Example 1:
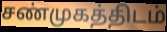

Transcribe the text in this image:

சண்முகத்திடம்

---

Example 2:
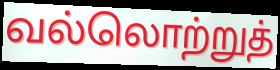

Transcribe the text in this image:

வல்லொற்றுத்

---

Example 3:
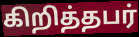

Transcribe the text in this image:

கிறித்தபர்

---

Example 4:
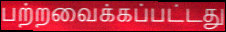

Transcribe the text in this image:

பற்றவைக்கப்பட்டது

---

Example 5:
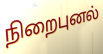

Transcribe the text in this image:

நிறைபுனல்